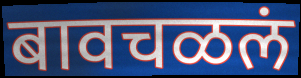
बावचळलं